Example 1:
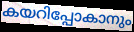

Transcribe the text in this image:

കയറിപ്പോകാനും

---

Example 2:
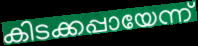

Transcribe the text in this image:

കിടക്കപ്പായേന്ന്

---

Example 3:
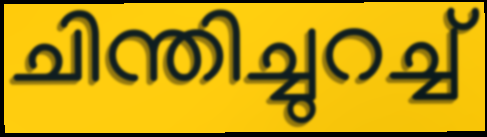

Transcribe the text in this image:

ചിന്തിച്ചുറച്ച്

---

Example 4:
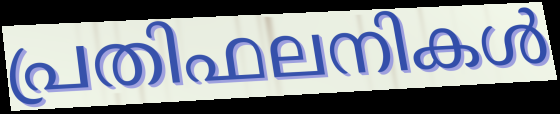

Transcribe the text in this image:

പ്രതിഫലനികൾ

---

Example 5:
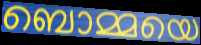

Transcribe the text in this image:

ബൊമ്മയെ